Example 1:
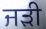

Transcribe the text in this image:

ਜੜੀ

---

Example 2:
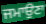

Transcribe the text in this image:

ਜਮਾਉਣਾ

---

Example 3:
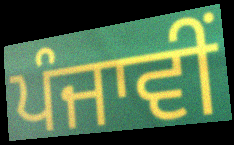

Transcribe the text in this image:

ਪੰਜਾਵੀਂ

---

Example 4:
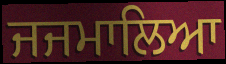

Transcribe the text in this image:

ਜਜਮਾਲਿਆ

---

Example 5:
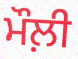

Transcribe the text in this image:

ਮੌਲ਼ੀ